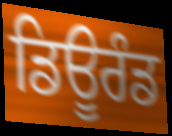
ਡਿਊਰੰਡ